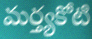
మర్త్యకోటి